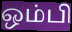
ஒம்பி